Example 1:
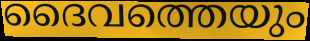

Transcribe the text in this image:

ദൈവത്തെയും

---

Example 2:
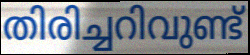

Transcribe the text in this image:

തിരിച്ചറിവുണ്ട്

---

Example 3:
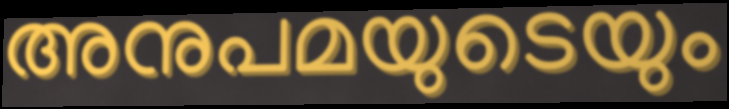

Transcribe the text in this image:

അനുപമയുടെയും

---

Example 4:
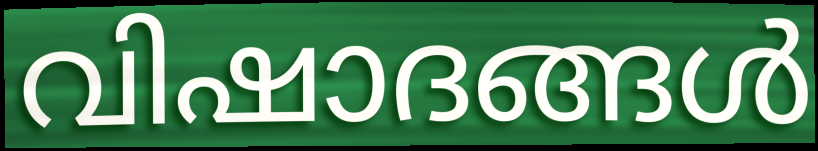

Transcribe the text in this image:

വിഷാദങ്ങൾ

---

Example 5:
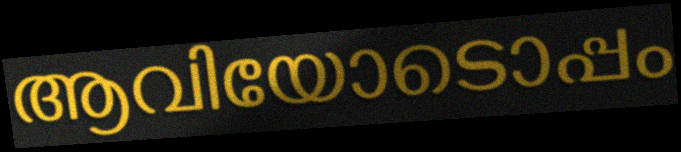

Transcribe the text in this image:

ആവിയോടൊപ്പം